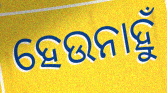
ହେଉନାହୁଁ